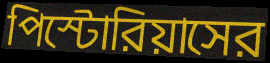
পিস্টোরিয়াসের